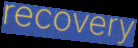
recovery